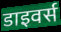
डाइवर्स